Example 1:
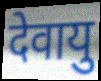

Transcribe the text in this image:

देवायु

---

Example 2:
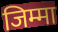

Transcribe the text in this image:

जिम्‍मा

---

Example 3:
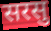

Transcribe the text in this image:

सरसु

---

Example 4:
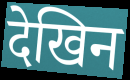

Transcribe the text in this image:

देखिन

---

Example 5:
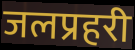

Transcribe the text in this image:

जलप्रहरी